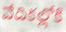
వేదికల్లోకి